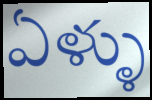
ఏళ్ళు